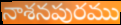
నాశనపురము